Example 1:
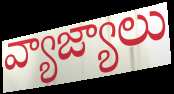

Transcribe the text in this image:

వ్యాజ్యాలు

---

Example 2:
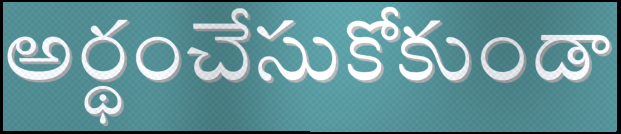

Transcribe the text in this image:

అర్థంచేసుకోకుండా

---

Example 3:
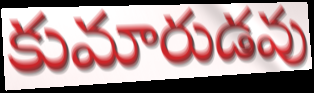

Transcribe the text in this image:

కుమారుడవు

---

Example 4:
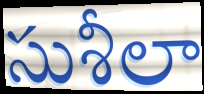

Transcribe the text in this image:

సుశీలా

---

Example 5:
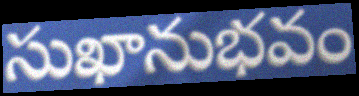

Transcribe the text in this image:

సుఖానుభవం